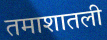
तमाशातली